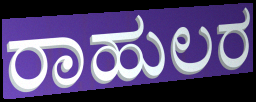
ರಾಹುಲರ